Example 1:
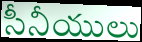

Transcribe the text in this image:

సీనీయులు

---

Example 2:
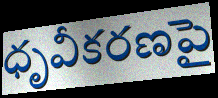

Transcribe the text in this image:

ధృవీకరణపై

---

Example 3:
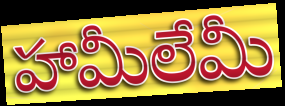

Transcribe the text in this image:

హామీలేమీ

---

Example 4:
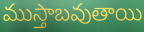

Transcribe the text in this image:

ముస్తాబవుతాయి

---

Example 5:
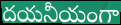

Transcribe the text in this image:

దయనీయంగా